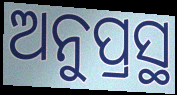
ଅନୁପ୍ରସ୍ଥ